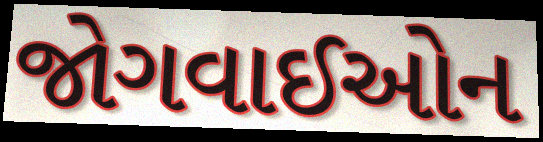
જોગવાઈઓન